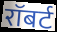
रॉबर्ट